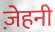
ज़ेहनी